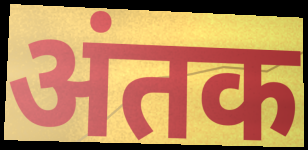
अंतक